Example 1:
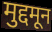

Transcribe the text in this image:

मुद्दमून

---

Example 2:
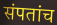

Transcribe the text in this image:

संपतांच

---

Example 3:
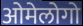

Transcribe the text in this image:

ओमेलोगो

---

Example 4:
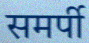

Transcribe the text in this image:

समर्पी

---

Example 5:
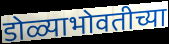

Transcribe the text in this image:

डोळ्याभोवतीच्या